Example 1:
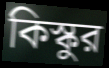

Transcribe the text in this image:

কিস্কুর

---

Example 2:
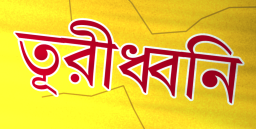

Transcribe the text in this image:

তূরীধ্বনি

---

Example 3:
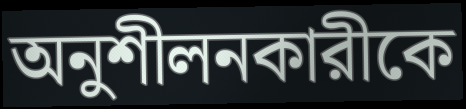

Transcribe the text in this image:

অনুশীলনকারীকে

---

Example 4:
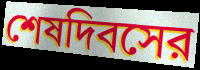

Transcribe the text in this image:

শেষদিবসের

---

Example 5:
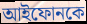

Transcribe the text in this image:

আইফোনকে